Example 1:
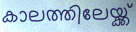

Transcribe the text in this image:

കാലത്തിലേയ്ക്ക്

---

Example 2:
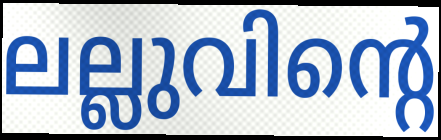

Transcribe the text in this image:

ലല്ലുവിന്റെ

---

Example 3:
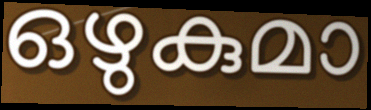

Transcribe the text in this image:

ഒഴുകുമാ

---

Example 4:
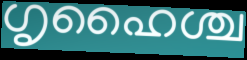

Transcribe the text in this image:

ഗൃഹൈശ്ച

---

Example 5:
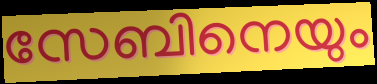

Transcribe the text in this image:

സേബിനെയും